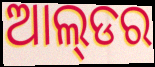
ଆଲ୍‌ଡର